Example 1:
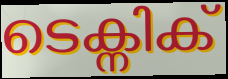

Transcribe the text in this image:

ടെക്നിക്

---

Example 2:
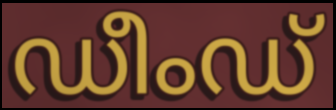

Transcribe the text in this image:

ഡീംഡ്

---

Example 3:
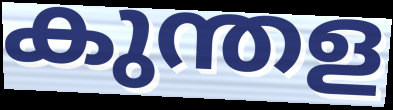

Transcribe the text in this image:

കുന്തള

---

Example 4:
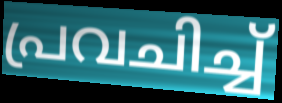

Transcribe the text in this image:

പ്രവചിച്ച്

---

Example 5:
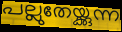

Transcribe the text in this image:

പല്ലുതേയ്ക്കുന്ന